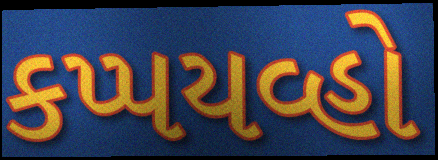
કપ્પયવ્હો